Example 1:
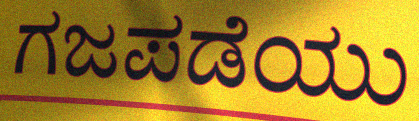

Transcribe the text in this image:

ಗಜಪಡೆಯು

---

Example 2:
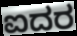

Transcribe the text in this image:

ಐದರ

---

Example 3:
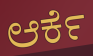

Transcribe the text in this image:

ಆರ್ಕೆ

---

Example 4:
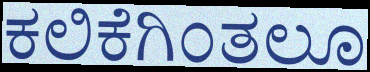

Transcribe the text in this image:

ಕಲಿಕೆಗಿಂತಲೂ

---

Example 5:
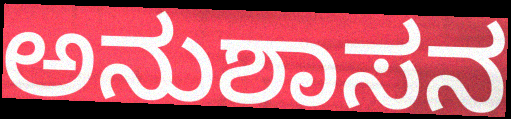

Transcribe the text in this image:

ಅನುಶಾಸನ